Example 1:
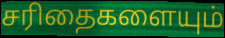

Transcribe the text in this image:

சரிதைகளையும்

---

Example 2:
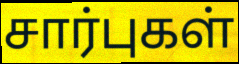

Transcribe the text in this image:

சார்புகள்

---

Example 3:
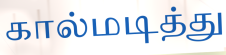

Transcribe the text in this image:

கால்மடித்து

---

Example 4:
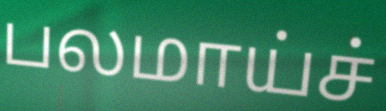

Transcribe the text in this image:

பலமாய்ச்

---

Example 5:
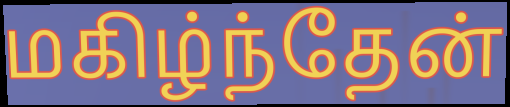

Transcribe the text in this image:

மகிழ்ந்தேன்